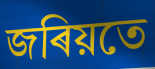
জৰিয়তে